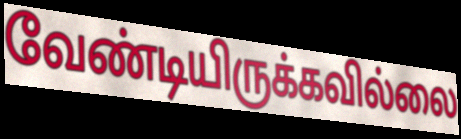
வேண்டியிருக்கவில்லை